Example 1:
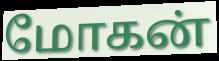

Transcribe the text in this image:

மோகன்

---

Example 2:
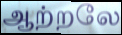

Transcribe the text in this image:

ஆற்றலே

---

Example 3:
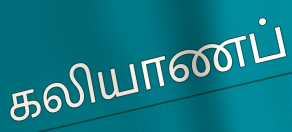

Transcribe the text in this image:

கலியாணப்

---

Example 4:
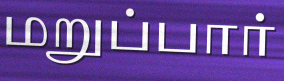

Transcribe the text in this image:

மறுப்பார்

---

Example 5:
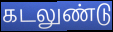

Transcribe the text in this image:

கடலுண்டு